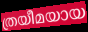
ത്രയീമയായ